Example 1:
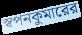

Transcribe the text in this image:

স্বপনকুমারের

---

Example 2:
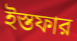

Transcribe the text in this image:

ইস্তফার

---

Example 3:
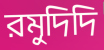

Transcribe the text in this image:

রমুদিদি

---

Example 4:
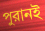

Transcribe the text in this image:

পুরানই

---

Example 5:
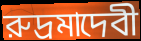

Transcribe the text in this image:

রুদ্রমাদেবী